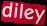
diley